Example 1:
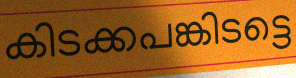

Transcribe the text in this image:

കിടക്കപങ്കിടട്ടെ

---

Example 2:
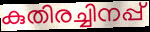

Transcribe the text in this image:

കുതിരച്ചിനപ്പ്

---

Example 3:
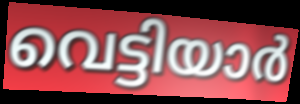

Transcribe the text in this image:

വെട്ടിയാർ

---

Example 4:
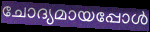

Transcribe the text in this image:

ചോദ്യമായപ്പോൾ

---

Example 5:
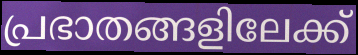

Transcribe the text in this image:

പ്രഭാതങ്ങളിലേക്ക്